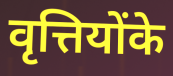
वृत्तियोंके